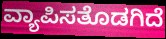
ವ್ಯಾಪಿಸತೊಡಗಿದೆ